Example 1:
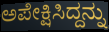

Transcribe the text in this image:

ಅಪೇಕ್ಷಿಸಿದ್ದನ್ನು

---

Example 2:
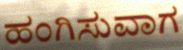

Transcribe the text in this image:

ಹಂಗಿಸುವಾಗ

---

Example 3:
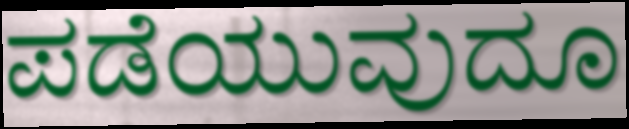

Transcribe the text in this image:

ಪಡೆಯುವುದೂ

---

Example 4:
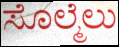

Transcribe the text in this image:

ಸೊಲ್ಮೆಲು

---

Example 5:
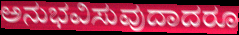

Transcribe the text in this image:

ಅನುಭವಿಸುವುದಾದರೂ